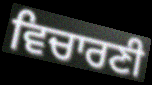
ਵਿਚਾਰਣੀ